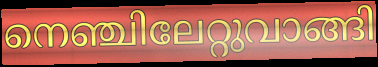
നെഞ്ചിലേറ്റുവാങ്ങി